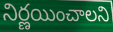
నిర్ణయించాలని